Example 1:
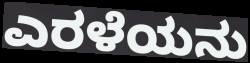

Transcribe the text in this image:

ಎರಳೆಯನು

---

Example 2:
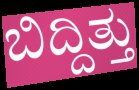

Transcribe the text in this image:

ಬಿದ್ದಿತ್ತು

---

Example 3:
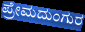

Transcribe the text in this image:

ಪ್ರೇಮದುಂಗುರ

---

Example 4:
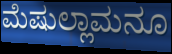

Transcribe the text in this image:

ಮೆಷುಲ್ಲಾಮನೂ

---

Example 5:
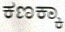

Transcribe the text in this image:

ಕಣಕ್ಕಾ